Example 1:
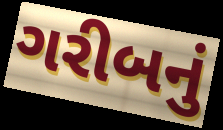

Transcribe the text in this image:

ગરીબનું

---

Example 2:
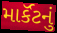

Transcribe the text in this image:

માર્કૅટનું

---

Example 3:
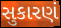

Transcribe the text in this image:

સુકારણં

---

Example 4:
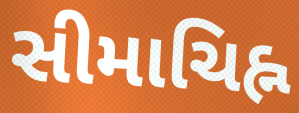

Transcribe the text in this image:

સીમાચિહ્ન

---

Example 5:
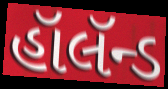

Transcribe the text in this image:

હૉલૅન્ડ